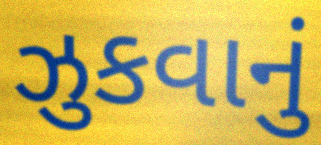
ઝુકવાનું